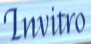
Invitro